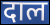
दाल